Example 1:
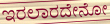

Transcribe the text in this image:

ಇರಲಾರದೇನೋ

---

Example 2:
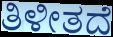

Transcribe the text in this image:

ತಿಳೀತದೆ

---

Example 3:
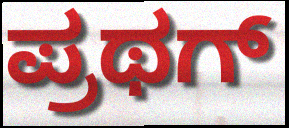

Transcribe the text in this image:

ಪ್ರಥಗ್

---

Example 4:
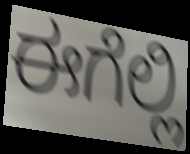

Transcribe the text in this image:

ಈಗೆಲ್ಲಿ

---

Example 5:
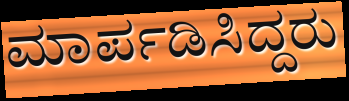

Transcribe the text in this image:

ಮಾರ್ಪಡಿಸಿದ್ದರು